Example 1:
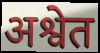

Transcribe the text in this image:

अश्वेत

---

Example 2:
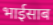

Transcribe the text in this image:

भाईसाब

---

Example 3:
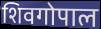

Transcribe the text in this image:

शिवगोपाल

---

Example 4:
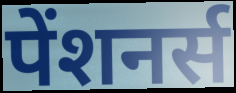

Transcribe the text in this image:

पेंशनर्स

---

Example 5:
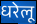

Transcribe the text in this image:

धरेलू